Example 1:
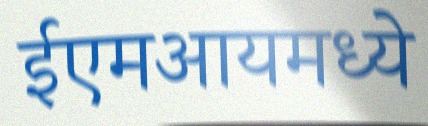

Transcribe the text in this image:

ईएमआयमध्ये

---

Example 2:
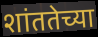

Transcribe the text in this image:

शांततेच्या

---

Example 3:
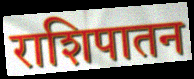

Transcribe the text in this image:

राशिपातन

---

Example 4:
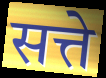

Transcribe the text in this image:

सत्ते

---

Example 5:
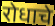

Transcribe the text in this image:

रोधाचे